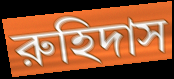
রুহিদাস